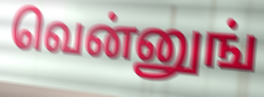
வென்னுங்